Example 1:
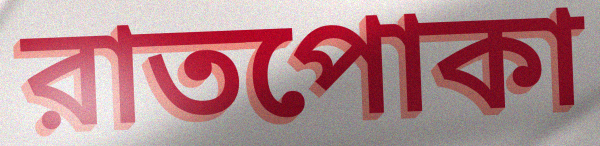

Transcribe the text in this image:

রাতপোকা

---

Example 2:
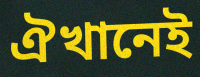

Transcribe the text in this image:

ঐখানেই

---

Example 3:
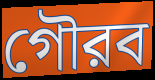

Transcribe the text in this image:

গৌরব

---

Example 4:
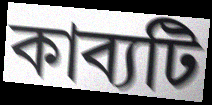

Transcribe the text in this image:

কাব্যটি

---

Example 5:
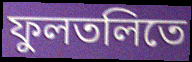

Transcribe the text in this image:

ফুলতলিতে